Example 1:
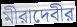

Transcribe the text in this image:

মীরাদেবীর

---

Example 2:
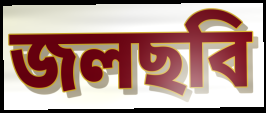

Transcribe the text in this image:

জলছবি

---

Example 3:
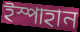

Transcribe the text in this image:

ইস্পাহান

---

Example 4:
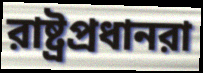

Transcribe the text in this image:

রাষ্ট্রপ্রধানরা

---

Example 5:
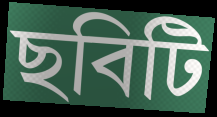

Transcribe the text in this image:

ছবিটি